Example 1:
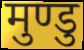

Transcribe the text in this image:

मुण्डु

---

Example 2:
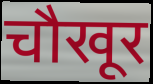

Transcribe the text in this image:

चौखूर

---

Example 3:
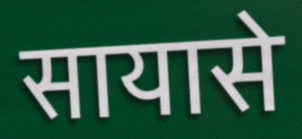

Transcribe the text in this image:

सायासे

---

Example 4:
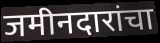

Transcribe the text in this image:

जमीनदारांचा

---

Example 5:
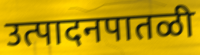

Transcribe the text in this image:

उत्पादनपातळी